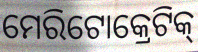
ମେରିଟୋକ୍ରେଟିକ୍